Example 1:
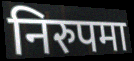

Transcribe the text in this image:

निरुपमा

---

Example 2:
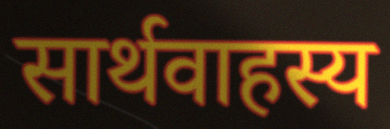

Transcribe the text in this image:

सार्थवाहस्य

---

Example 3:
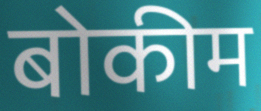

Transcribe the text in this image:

बोकीम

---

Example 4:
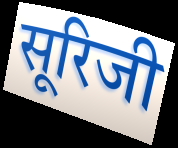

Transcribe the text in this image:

सूरिजी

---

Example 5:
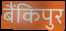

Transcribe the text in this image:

बैंकिपुर